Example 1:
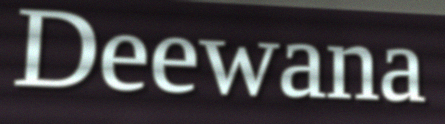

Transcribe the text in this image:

Deewana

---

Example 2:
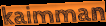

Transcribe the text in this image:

kaimman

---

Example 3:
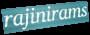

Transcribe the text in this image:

rajinirams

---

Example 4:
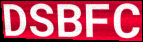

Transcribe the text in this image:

DSBFC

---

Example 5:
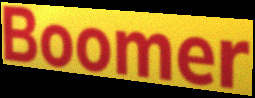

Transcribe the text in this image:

Boomer